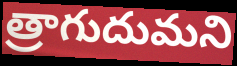
త్రాగుదుమని